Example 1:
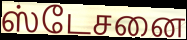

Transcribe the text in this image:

ஸ்டேசனை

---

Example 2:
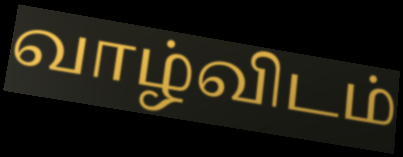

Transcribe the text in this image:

வாழ்விடம்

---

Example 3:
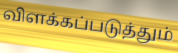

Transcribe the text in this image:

விளக்கப்படுத்தும்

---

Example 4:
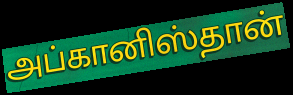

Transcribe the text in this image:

அப்கானிஸ்தான்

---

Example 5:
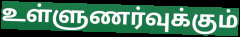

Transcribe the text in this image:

உள்ளுணர்வுக்கும்